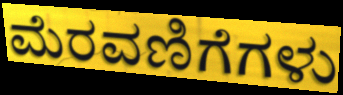
ಮೆರವಣಿಗೆಗಳು